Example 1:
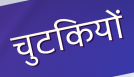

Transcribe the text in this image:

चुटकियों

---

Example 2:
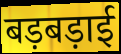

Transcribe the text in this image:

बड़बड़ाई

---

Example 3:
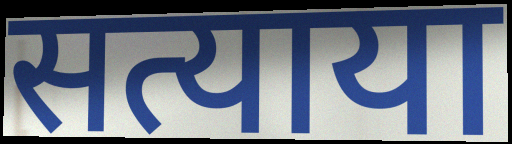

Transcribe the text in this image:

सत्याया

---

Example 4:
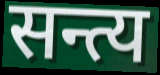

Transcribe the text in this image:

सन्त्य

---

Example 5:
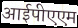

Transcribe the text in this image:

आईपीएएम